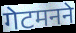
गेटमनने